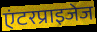
एंटरप्राइजेज